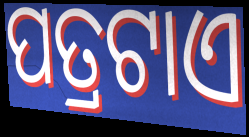
ପତ୍ରଟାଏ